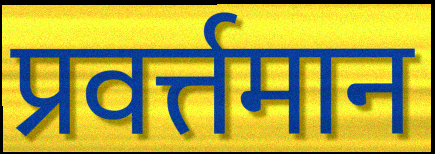
प्रवर्त्तमान